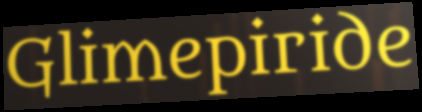
Glimepiride